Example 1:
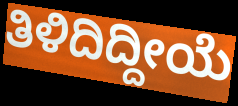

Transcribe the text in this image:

ತಿಳಿದಿದ್ದೀಯೆ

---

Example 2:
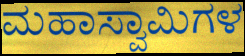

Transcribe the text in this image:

ಮಹಾಸ್ವಾಮಿಗಳ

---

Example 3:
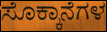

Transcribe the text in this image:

ಸೊಕ್ಕಾನೆಗಳ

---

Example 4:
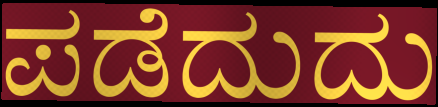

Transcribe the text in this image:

ಪಡೆದುದು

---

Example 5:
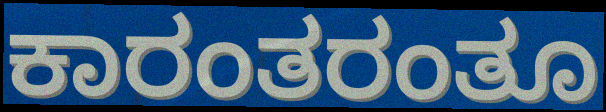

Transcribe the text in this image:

ಕಾರಂತರಂತೂ